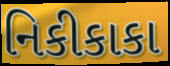
નિકીકાકા